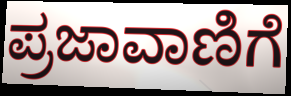
ಪ್ರಜಾವಾಣಿಗೆ